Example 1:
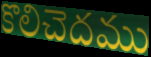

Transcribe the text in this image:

కొలిచెదము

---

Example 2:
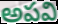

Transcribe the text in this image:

అపవి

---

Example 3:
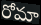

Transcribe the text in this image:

రోమా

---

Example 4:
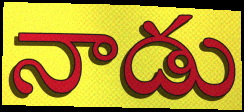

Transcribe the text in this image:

నాడు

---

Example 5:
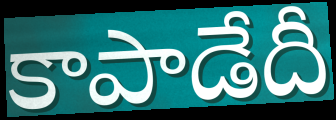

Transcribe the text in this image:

కాపాడేదీ